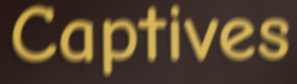
Captives